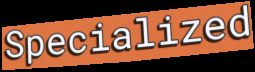
Specialized